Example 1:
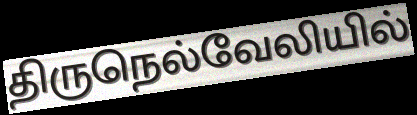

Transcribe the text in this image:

திருநெல்வேலியில்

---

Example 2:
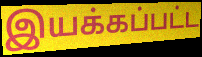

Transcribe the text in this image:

இயக்கப்பட்ட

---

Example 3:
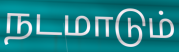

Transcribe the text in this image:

நடமாடும்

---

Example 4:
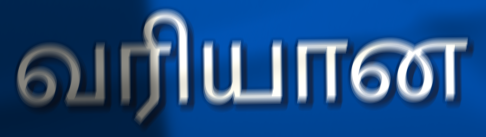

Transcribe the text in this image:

வரியான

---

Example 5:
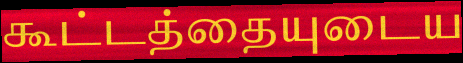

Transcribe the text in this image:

கூட்டத்தையுடைய